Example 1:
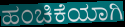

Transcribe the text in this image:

ಹಂಚಿಕೆಯಾಗಿ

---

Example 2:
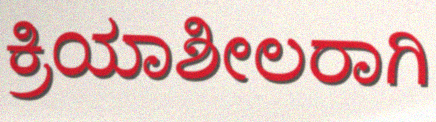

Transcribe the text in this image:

ಕ್ರಿಯಾಶೀಲರಾಗಿ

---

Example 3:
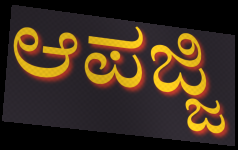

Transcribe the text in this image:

ಆಪಜ್ಜಿ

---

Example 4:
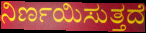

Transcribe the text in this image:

ನಿರ್ಣಯಿಸುತ್ತದೆ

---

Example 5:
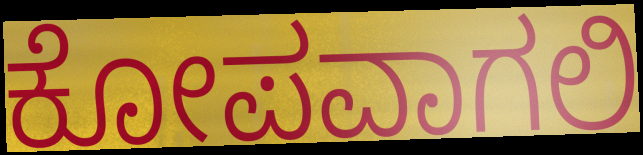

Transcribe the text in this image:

ಕೋಪವಾಗಲಿ